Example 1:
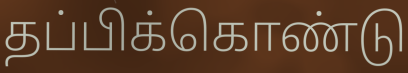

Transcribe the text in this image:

தப்பிக்கொண்டு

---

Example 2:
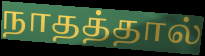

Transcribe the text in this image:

நாதத்தால்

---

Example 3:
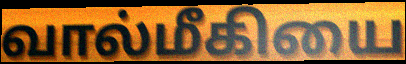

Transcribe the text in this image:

வால்மீகியை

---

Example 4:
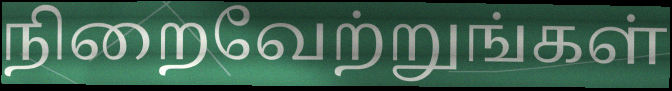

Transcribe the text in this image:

நிறைவேற்றுங்கள்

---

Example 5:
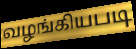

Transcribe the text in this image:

வழங்கியபடி